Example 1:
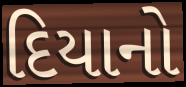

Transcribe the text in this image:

દિયાનો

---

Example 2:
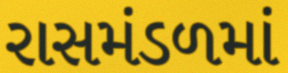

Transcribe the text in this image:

રાસમંડળમાં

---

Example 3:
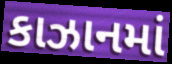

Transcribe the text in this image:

કાઝાનમાં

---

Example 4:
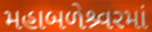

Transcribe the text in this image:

મહાબળેશ્ર્વરમાં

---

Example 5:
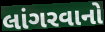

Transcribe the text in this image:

લાંગરવાનો